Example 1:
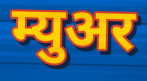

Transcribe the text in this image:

म्युअर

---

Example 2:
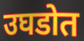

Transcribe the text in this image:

उघडोत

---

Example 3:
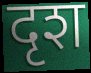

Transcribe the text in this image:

दृश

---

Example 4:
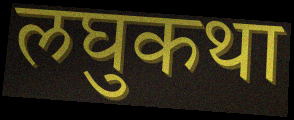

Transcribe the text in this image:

लघुकथा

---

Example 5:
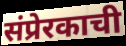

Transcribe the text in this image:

संप्रेरकाची